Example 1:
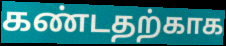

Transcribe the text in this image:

கண்டதற்காக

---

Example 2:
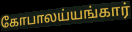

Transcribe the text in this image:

கோபாலய்யங்கார்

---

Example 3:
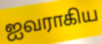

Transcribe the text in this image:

ஐவராகிய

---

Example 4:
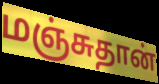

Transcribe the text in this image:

மஞ்சுதான்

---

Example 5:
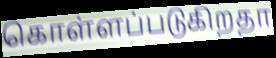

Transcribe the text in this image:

கொள்ளப்படுகிறதா